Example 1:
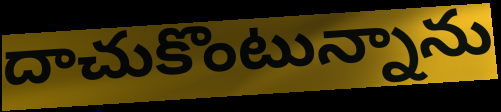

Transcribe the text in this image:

దాచుకొంటున్నాను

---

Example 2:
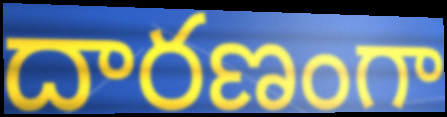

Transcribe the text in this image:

దారణంగా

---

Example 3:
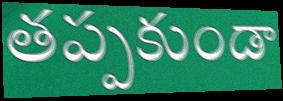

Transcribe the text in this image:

తప్పకుండా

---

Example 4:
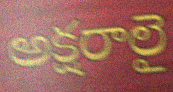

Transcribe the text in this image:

అక్షరాలై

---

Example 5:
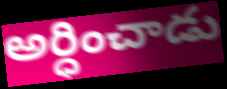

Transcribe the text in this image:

అర్ధించాడు